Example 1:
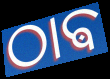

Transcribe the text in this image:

ଠାଵ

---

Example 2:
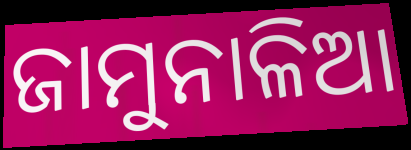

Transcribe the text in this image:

ଜାମୁନାଳିଆ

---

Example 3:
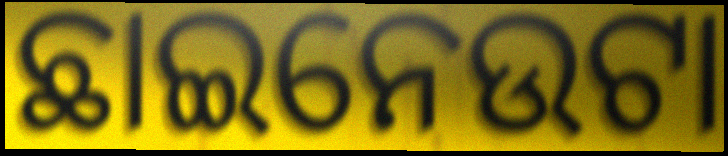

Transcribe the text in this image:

ଛାଇନେଉଟା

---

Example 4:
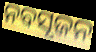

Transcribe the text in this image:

ନବସୃଜନ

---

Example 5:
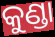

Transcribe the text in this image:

କୁଣ୍ଡା